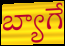
బ్యాగే